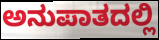
ಅನುಪಾತದಲ್ಲಿ